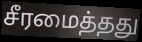
சீரமைத்தது